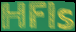
HFIs